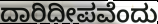
ದಾರಿದೀಪವೆಂದು